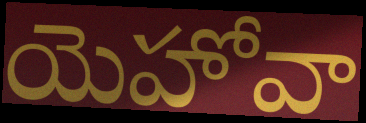
యెహోవా